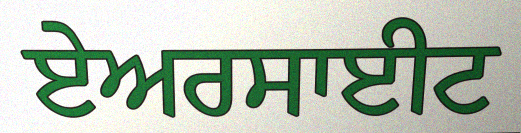
ਏਅਰਸਾਈਟ